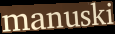
manuski